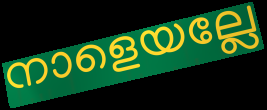
നാളെയല്ലേ